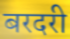
बरदरी